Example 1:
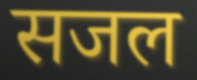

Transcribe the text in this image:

सजल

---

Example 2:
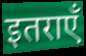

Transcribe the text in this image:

इतराएँ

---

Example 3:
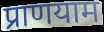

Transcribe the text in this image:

प्राणयाम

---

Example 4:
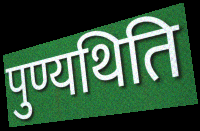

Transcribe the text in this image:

पुण्यथिति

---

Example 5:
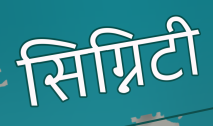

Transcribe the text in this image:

सिग्निटी